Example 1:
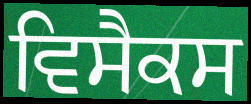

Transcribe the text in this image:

ਵਿਸੈਕਸ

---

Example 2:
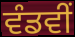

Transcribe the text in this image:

ਵੰਡਵੀਂ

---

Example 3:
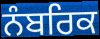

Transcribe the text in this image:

ਨੰਬਰਿਕ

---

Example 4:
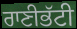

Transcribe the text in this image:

ਰਾਣੀਭੱਟੀ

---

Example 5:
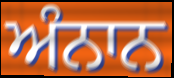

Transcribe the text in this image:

ਅੰਨਾਨ